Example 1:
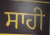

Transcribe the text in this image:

ਸਾਹੀ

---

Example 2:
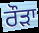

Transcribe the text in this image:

ਰੌੜਾ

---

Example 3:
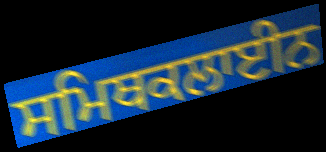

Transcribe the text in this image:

ਸਮਿਥਕਲਾਈਨ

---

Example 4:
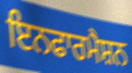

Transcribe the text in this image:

ਇਨਫਾਰਮੈਸ਼ਨ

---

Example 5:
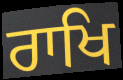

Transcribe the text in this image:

ਰਾਖਿ